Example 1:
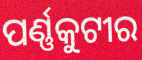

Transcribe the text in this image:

ପର୍ଣ୍ଣକୁଟୀର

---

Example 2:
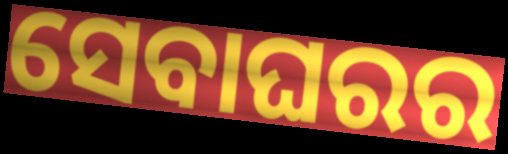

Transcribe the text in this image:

ସେବାଘରର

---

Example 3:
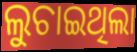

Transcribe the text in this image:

ଲୁଚାଇଥିଲା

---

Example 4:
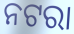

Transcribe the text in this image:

ନଟରା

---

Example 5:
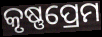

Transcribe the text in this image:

କୃଷ୍ଣପ୍ରେମ